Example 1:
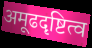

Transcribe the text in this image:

अमूढदृष्टित्व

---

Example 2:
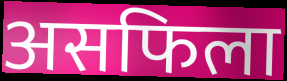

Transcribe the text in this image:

असफिला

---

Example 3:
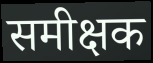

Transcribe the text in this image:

समीक्षक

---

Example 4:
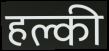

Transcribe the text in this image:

हल्‍की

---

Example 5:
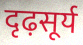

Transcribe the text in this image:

दृढ़सूर्य